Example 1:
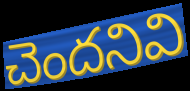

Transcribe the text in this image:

చెందనివి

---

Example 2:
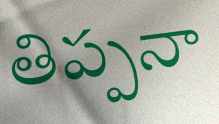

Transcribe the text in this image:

తిప్పనా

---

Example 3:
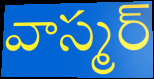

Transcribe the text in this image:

వాస్మర్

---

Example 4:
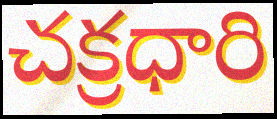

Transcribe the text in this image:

చక్రధారి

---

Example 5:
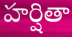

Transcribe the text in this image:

హర్షితా